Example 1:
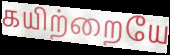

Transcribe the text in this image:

கயிற்றையே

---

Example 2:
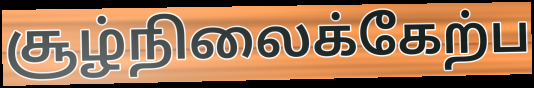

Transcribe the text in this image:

சூழ்நிலைக்கேற்ப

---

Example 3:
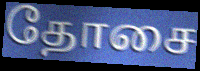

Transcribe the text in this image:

தோசை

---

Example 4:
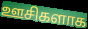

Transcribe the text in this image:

ஊசிகளாக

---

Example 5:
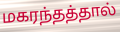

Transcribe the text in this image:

மகரந்தத்தால்